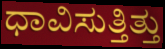
ಧಾವಿಸುತ್ತಿತ್ತು